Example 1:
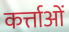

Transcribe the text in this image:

कर्त्ताओं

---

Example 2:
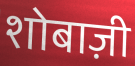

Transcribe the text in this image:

शोबाज़ी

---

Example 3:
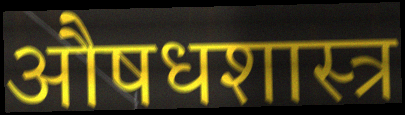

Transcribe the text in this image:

औषधशास्त्र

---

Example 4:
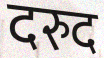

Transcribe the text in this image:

दरुद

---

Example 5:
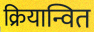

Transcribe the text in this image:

क्रियान्वित